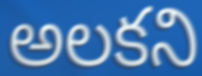
అలకని